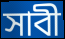
সাবী